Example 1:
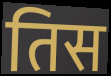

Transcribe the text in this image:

तिस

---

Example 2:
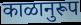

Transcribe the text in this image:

काळानुरूप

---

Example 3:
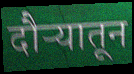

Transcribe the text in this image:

दौऱ्यातून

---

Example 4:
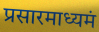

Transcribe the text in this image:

प्रसारमाध्यमं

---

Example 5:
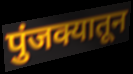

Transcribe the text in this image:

पुंजक्यातून